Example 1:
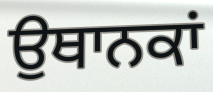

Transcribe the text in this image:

ਉਥਾਨਕਾਂ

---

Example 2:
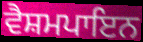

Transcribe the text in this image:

ਵੈਸ਼ਮਪਾਇਨ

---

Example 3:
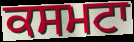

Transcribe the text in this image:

ਕਸਮਟਾ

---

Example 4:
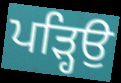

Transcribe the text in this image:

ਪੜ੍ਹਿਉ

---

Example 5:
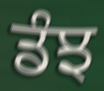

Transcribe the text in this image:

ਡੰਝ